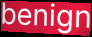
benign